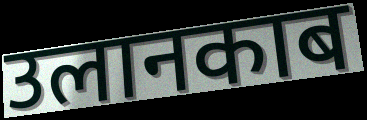
उलानकाब